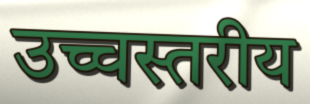
उच्चस्तरीय